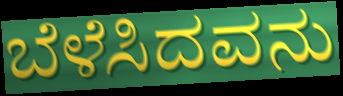
ಬೆಳೆಸಿದವನು